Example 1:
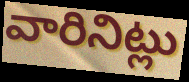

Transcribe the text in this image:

వారినిట్లు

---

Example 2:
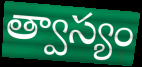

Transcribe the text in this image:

త్వాస్యం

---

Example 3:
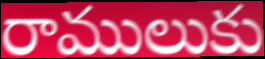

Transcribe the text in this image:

రాములుకు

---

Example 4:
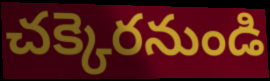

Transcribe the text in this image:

చక్కెరనుండి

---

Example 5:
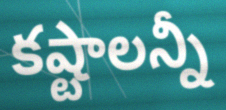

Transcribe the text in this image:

కష్టాలన్నీ